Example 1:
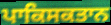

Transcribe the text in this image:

ਪਾਕਿਸਕਤਾਨ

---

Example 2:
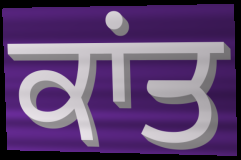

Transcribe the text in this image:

ਕਾਂਤ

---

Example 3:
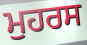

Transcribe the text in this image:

ਮੁਹਰਸ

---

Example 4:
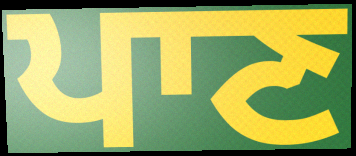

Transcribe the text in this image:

ਪਾਣ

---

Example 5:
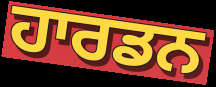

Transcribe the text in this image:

ਹਾਰਡਨ